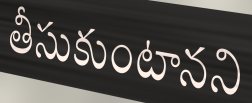
తీసుకుంటానని